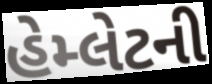
હેમ્લેટની